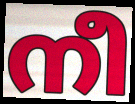
നീ